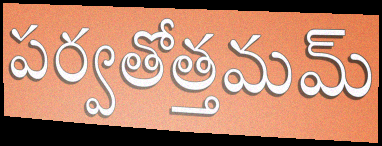
పర్వతోత్తమమ్